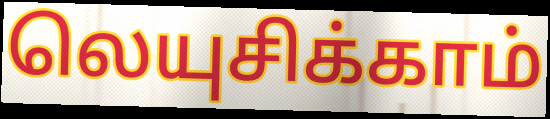
லெயுசிக்காம்